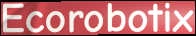
Ecorobotix